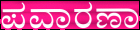
ಪವಾರಣಾ